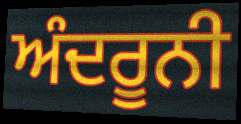
ਅੰਦਰੂਨੀ